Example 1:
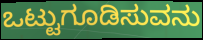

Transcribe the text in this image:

ಒಟ್ಟುಗೂಡಿಸುವನು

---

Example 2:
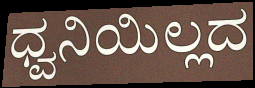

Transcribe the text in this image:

ಧ್ವನಿಯಿಲ್ಲದ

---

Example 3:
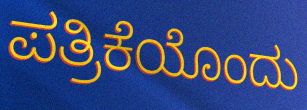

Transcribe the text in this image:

ಪತ್ರಿಕೆಯೊಂದು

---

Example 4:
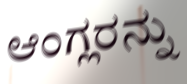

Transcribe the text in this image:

ಆಂಗ್ಲರನ್ನು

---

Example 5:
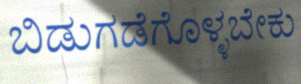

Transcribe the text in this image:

ಬಿಡುಗಡೆಗೊಳ್ಳಬೇಕು